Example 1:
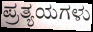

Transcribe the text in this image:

ಪ್ರತ್ಯಯಗಳು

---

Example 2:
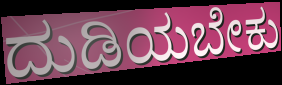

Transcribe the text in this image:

ದುಡಿಯಬೇಕು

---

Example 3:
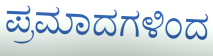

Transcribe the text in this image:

ಪ್ರಮಾದಗಳಿಂದ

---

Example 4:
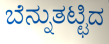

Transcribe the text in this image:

ಬೆನ್ನುತಟ್ಟಿದ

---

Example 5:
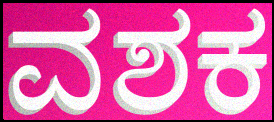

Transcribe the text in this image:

ವಶಕ